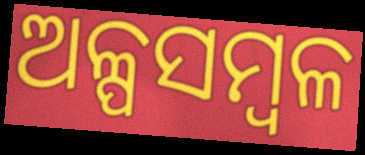
ଅଳ୍ପସମ୍ବଳ